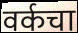
वर्कचा